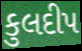
કુલદીપ